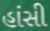
હાંસી